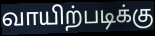
வாயிற்படிக்கு